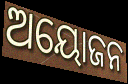
ଅୟୋଜନ